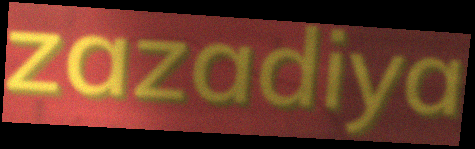
zazadiya